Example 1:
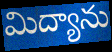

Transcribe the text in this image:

మిద్యాను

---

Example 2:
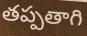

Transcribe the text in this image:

తప్పతాగి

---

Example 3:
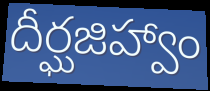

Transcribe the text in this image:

దీర్ఘజిహ్వాం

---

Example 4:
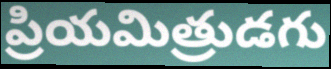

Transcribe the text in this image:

ప్రియమిత్రుడగు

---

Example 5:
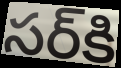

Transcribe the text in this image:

సర్‌కి